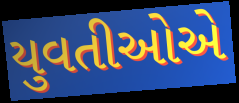
યુવતીઓએ